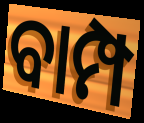
ବାମ୍ପ